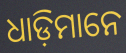
ଧାଡ଼ିମାନେ